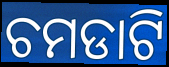
ଚମଡାଟି